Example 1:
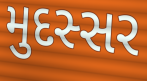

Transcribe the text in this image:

મુદસ્સર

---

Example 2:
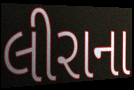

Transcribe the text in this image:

લીરાના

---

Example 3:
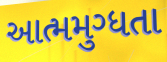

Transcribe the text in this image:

આત્મમુગ્ધતા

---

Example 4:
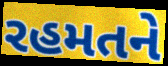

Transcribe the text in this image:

રહમતને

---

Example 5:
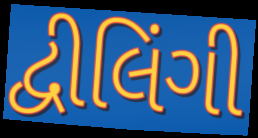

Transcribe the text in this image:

દ્વીલિંગી